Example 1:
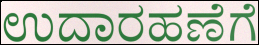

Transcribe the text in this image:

ಉದಾರಹಣೆಗೆ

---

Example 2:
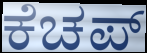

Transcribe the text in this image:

ಕೆಚಪ್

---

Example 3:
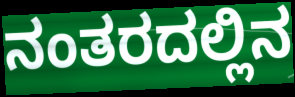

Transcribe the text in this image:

ನಂತರದಲ್ಲಿನ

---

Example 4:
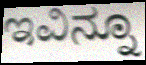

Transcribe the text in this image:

ಇವಿನ್ನೂ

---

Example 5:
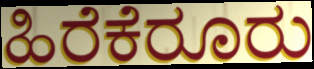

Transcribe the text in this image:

ಹಿರೆಕೆರೂರು